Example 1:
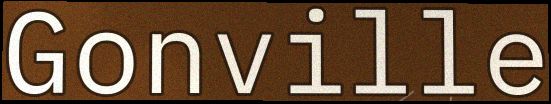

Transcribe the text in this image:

Gonville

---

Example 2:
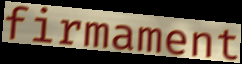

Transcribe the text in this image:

firmament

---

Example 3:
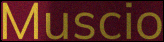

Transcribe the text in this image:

Muscio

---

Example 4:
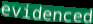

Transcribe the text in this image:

evidenced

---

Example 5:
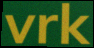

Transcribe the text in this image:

vrk